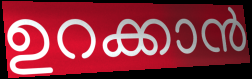
ഉറക്കാൻ